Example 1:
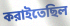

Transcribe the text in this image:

করাইতেছিল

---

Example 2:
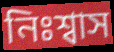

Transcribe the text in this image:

নিঃশ্বাস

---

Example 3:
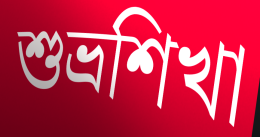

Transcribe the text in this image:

শুভ্রশিখা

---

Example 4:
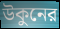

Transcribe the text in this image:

উকুনের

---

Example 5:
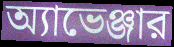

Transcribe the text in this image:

অ্যাভেঞ্জার